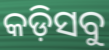
କଡ଼ିସବୁ